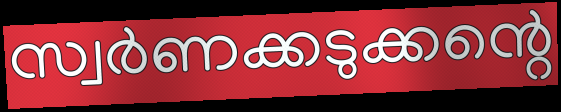
സ്വർണക്കടുക്കന്റെ